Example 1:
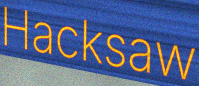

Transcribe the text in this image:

Hacksaw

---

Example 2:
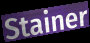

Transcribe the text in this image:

Stainer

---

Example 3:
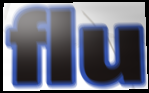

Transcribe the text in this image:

flu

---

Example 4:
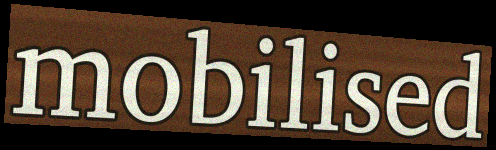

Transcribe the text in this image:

mobilised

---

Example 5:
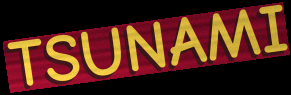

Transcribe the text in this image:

TSUNAMI